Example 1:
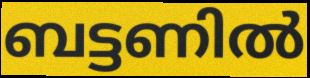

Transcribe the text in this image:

ബട്ടണിൽ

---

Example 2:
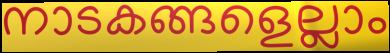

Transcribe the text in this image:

നാടകങ്ങളെല്ലാം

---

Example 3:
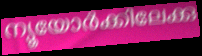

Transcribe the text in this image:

ന്യൂയോർക്കിലേക്കു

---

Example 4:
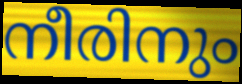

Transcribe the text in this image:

നീരിനും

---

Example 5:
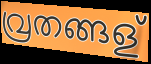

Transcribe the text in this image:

വ്രതങ്ങള്